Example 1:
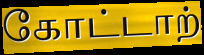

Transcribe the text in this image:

கோட்டாற்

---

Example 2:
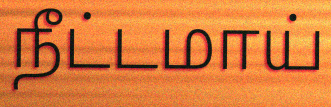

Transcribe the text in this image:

நீட்டமாய்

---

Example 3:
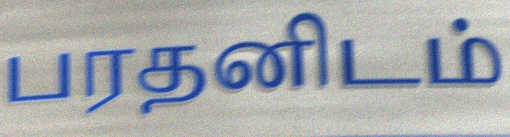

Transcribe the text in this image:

பரதனிடம்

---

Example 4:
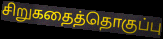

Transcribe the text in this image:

சிறுகதைத்தொகுப்பு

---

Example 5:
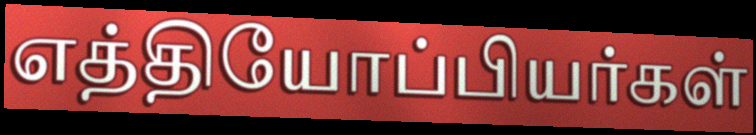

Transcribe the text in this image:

எத்தியோப்பியர்கள்